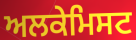
ਅਲਕੇਮਿਸਟ